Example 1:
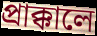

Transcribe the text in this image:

প্রাক্কালে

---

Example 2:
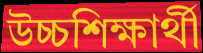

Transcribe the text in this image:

উচ্চশিক্ষার্থী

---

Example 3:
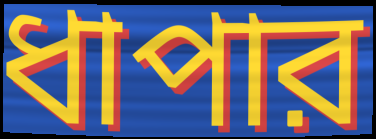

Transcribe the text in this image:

ধাপার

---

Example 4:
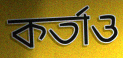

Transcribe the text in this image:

কর্তাও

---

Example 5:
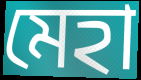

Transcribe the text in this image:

মেহা